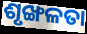
ଶୃଙ୍ଖଳତା